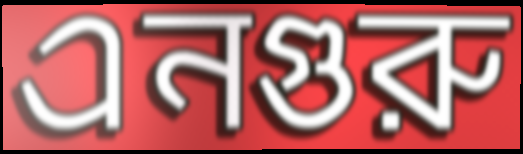
এনগুরু